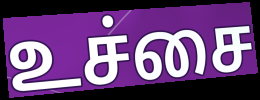
உச்சை